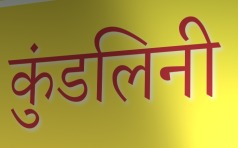
कुंडलिनी